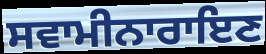
ਸਵਾਮੀਨਾਰਾਇਣ